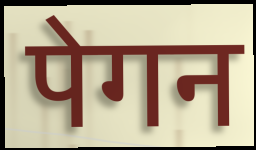
पेगन